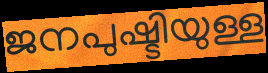
ജനപുഷ്ടിയുള്ള